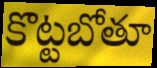
కొట్టబోతూ